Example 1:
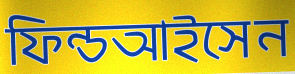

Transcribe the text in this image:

ফিন্ডআইসেন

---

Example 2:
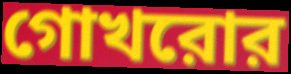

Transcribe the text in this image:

গোখরোর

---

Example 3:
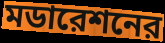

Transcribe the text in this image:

মডারেশনের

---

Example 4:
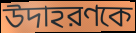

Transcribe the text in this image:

উদাহরণকে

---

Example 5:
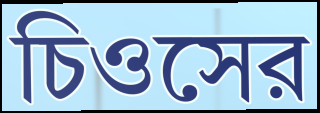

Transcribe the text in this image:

চিওসের